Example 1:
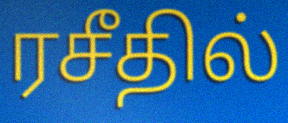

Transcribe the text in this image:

ரசீதில்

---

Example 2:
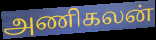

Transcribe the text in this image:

அணிகலன்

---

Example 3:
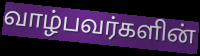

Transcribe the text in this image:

வாழ்பவர்களின்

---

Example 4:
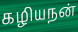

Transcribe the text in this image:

கழியநன்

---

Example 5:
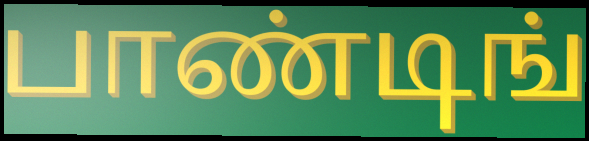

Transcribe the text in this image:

பாண்டிங்